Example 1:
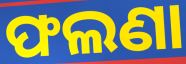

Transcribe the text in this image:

ଫଲଣା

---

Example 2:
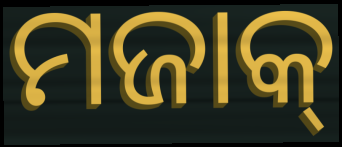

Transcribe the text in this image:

ମଜାକ୍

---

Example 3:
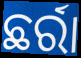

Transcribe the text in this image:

ଛର୍ରା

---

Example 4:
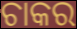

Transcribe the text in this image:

ଚାକର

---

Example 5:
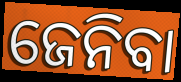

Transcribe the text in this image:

ଜେନିବା